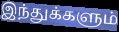
இந்துக்களும்